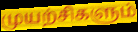
முயற்சிகளும்